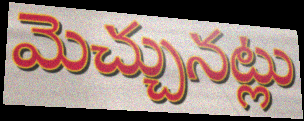
మెచ్చునట్లు